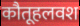
कौतूहलवश